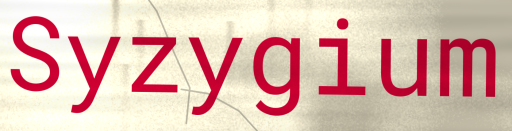
Syzygium